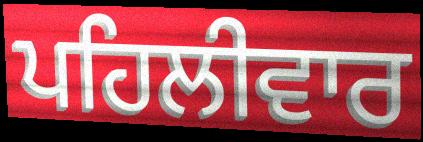
ਪਹਿਲੀਵਾਰ